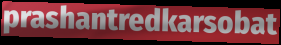
prashantredkarsobat